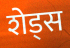
शेड्स